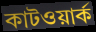
কাটওয়ার্ক